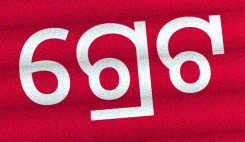
ଗ୍ରେଟ